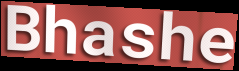
Bhashe